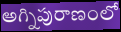
అగ్నిపురాణంలో